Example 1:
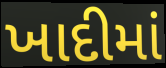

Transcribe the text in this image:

ખાદીમાં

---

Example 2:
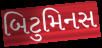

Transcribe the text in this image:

બિટુમિનસ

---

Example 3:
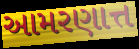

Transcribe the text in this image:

આમરણાત્ત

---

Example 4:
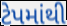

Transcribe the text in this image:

ટેપમાંથી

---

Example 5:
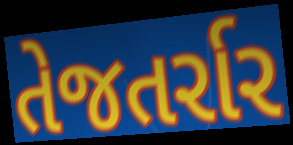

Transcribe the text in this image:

તેજતર્રાર